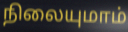
நிலையுமாம்